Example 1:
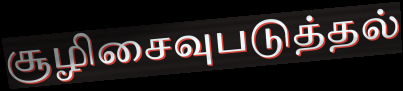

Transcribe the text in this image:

சூழிசைவுபடுத்தல்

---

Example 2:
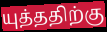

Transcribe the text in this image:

யுத்ததிற்கு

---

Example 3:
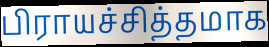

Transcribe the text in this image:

பிராயச்சித்தமாக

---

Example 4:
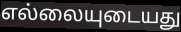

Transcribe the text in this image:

எல்லையுடையது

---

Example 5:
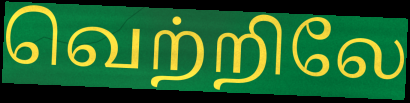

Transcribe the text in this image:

வெற்றிலே